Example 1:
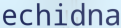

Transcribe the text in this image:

echidna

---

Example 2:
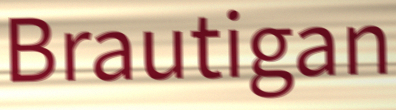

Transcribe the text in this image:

Brautigan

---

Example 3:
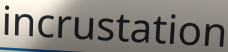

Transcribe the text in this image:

incrustation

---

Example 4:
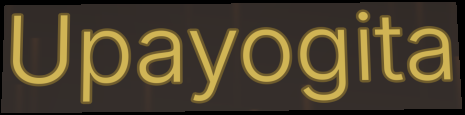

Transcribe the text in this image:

Upayogita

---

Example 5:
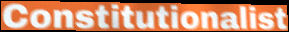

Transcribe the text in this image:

Constitutionalist